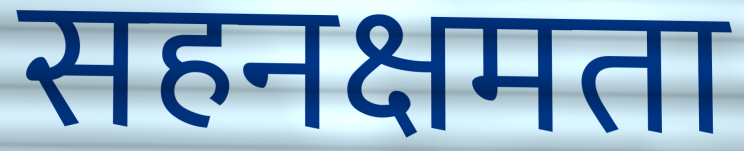
सहनक्षमता